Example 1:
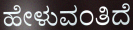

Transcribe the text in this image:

ಹೇಳುವಂತಿದೆ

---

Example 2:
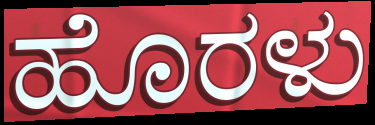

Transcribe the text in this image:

ಹೊರಳು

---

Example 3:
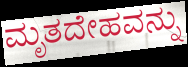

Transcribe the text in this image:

ಮೃತದೇಹವನ್ನು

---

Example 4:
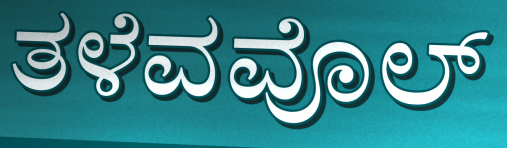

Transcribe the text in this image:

ತಳೆವವೊಲ್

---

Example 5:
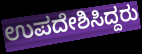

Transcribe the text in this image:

ಉಪದೇಶಿಸಿದ್ದರು